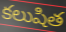
కలుషిత